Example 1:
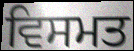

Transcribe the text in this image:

ਵਿਸਮਤ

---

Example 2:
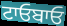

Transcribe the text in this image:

ਟਾਓਬਾਓ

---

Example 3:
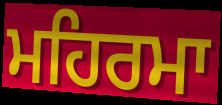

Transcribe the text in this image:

ਮਹਿਰਮਾ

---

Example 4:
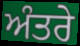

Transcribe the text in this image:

ਅੰਤਰੇ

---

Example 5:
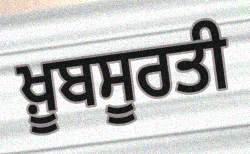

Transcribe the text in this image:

ਖ਼ੂਬਸੂਰਤੀ